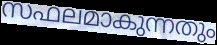
സഫലമാകുന്നതും